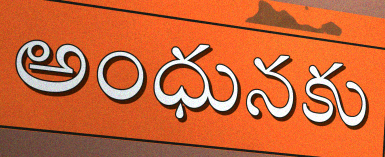
అంధునకు